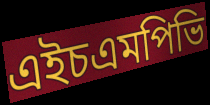
এইচএমপিভি